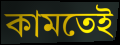
কামতেই